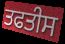
ਤਫਤੀਸ